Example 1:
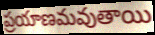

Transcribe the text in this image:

ప్రయాణమవుతాయి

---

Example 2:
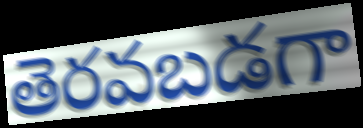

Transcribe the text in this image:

తెరవబడగా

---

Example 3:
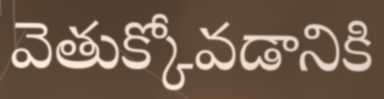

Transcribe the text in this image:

వెతుక్కోవడానికి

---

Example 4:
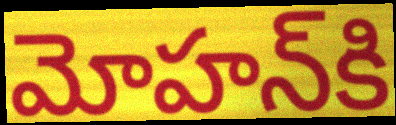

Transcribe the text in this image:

మోహన్‌కి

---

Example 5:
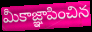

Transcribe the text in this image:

మీకాజ్ఞాపించిన